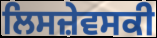
ਲਿਸਜ਼ੇਵਸਕੀ